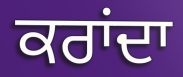
ਕਰਾਂਦਾ